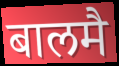
बालमै